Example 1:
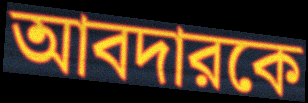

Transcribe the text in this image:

আবদারকে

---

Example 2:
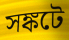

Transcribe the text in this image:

সঙ্কটে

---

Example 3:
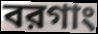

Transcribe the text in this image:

বরগাং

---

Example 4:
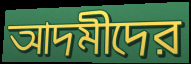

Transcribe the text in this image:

আদমীদের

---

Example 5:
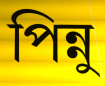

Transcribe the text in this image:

পিন্নু